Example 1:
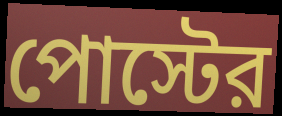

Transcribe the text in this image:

পোস্টের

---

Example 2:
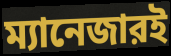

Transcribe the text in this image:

ম্যানেজারই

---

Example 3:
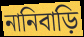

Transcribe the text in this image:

নানিবাড়ি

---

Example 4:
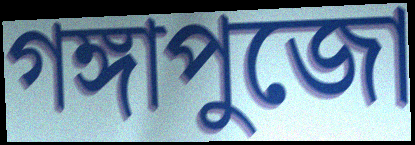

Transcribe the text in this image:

গঙ্গাপুজো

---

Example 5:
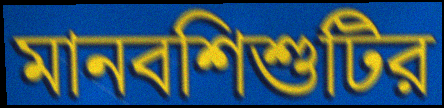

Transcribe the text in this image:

মানবশিশুটির